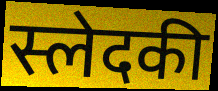
स्लेदकी